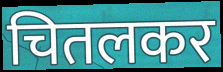
चितलकर